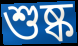
শুষ্ক